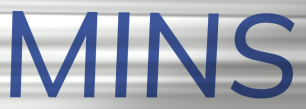
MINS